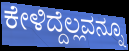
ಕೇಳಿದ್ದೆಲ್ಲವನ್ನೂ